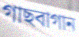
গাছবাগান